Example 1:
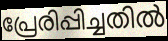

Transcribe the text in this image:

പ്രേരിപ്പിച്ചതിൽ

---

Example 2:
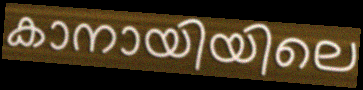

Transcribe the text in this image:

കാനായിയിലെ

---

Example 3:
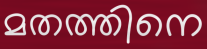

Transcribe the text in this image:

മതത്തിനെ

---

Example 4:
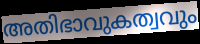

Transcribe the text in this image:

അതിഭാവുകത്വവും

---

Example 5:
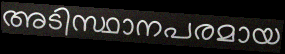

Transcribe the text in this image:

അടിസ്ഥാനപരമായ